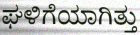
ಘಳಿಗೆಯಾಗಿತ್ತು